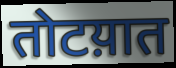
तोटय़ात